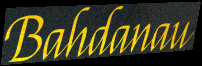
Bahdanau